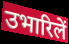
उभारिलें